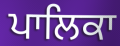
ਪਾਲਿਕਾ